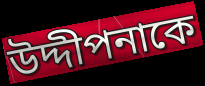
উদ্দীপনাকে